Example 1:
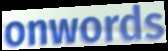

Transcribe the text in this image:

onwords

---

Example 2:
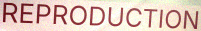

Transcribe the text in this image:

REPRODUCTION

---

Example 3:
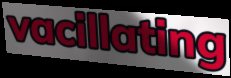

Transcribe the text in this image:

vacillating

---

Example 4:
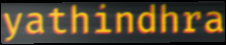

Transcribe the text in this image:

yathindhra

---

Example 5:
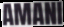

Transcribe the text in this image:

AMANI